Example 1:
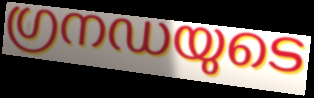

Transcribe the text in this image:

ഗ്രനഡയുടെ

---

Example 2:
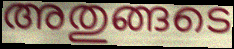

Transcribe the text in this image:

അതുങ്ങടെ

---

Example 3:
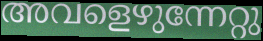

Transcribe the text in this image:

അവളെഴുന്നേറ്റു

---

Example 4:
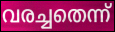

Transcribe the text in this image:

വരച്ചതെന്ന്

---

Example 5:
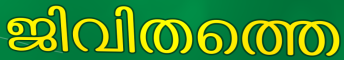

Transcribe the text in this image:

ജിവിതത്തെ